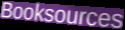
Booksources